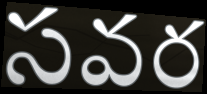
సవర